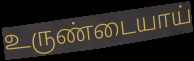
உருண்டையாய்